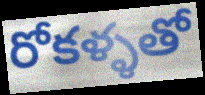
రోకళ్ళతో